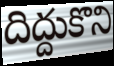
దిద్దుకొని